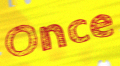
Once